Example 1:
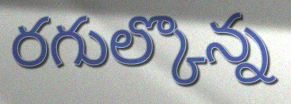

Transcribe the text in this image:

రగుల్కొన్న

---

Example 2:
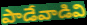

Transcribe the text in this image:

పాడేవాడివి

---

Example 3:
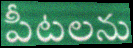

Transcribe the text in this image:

పీటలను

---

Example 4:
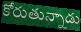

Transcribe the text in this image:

కోరుతున్నాడు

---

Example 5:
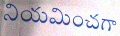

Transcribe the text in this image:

నియమించగా